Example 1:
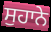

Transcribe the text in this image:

ਸੁਹਾਨੇ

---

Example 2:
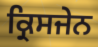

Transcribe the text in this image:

ਕ੍ਰਿਸਜੇਨ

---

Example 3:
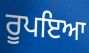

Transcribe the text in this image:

ਰੂਪਇਆ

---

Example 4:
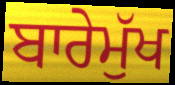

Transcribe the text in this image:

ਬਾਰੇਮੁੱਖ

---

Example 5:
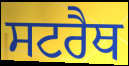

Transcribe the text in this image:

ਸਟਰੈਥ